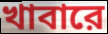
খাবারে